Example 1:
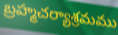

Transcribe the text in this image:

బ్రహ్మచర్యాశ్రమము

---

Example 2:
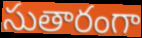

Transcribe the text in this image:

సుతారంగా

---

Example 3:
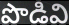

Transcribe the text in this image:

పొడివి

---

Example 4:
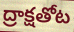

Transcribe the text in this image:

ద్రాక్షతోట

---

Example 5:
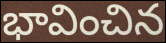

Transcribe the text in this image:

భావించిన